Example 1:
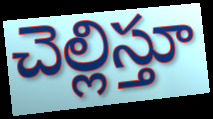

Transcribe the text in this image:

చెల్లిస్తూ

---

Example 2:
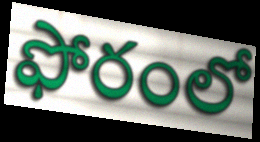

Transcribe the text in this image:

ఫోరంలో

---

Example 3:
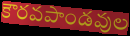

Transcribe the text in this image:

కౌరవపాండవుల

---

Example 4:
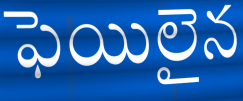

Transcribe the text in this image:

ఫెయిలైన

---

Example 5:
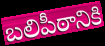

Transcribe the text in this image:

బలిపీఠానికి